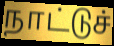
நாட்டுச்